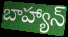
బాహ్యాన్